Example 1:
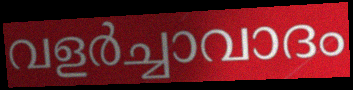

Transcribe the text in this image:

വളർച്ചാവാദം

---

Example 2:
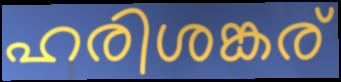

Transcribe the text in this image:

ഹരിശങ്കര്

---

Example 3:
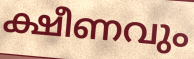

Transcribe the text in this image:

ക്ഷീണവും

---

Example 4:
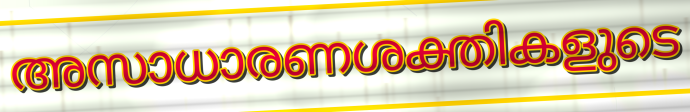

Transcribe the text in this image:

അസാധാരണശക്തികളുടെ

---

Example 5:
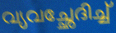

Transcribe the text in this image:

വ്യവച്ഛേദിച്ച്